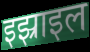
इझ्राइल